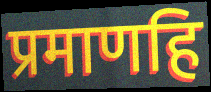
प्रमाणहि